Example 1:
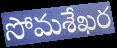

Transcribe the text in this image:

సోమశేఖర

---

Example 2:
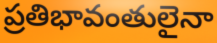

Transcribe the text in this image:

ప్రతిభావంతులైనా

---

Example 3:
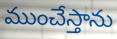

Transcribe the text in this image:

ముంచేస్తాను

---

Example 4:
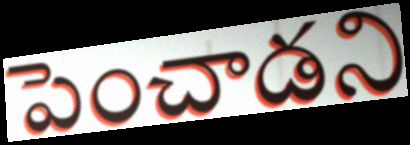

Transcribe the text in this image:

పెంచాడని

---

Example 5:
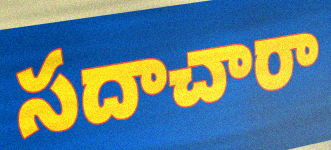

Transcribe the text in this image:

సదాచారా